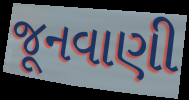
જૂનવાણી